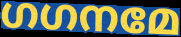
ഗഗനമേ